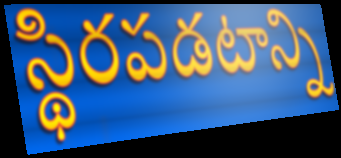
స్థిరపడటాన్ని